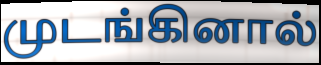
முடங்கினால்